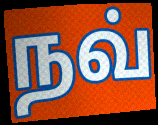
நவ்